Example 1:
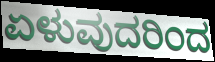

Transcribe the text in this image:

ಏಳುವುದರಿಂದ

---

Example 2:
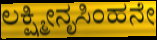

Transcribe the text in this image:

ಲಕ್ಷ್ಮೀನೃಸಿಂಹನೇ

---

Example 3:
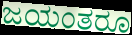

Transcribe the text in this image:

ಜಯಂತರೂ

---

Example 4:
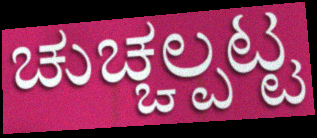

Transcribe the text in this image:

ಚುಚ್ಚಲ್ಪಟ್ಟ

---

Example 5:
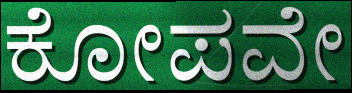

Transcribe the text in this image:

ಕೋಪವೇ